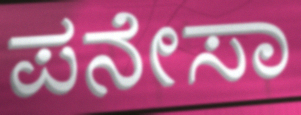
ಪನೇಸಾ